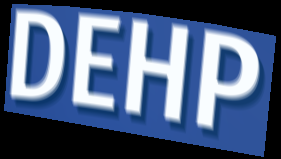
DEHP